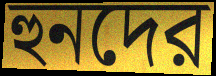
হুনদের